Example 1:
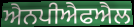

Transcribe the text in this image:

ਐਨਪੀਐਫਐਲ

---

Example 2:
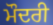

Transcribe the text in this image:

ਮੌਦਰੀ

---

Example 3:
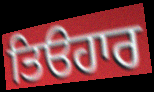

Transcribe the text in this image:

ਤਿੳਹਾਰ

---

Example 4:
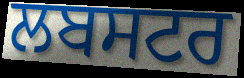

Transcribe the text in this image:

ਲਬਸਟਰ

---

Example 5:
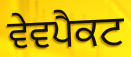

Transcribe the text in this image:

ਵੇਵਪੈਕਟ